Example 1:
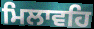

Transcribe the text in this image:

ਮਿਲਾਵਹਿ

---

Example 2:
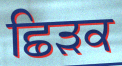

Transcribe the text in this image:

ਛਿੜਕ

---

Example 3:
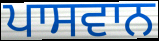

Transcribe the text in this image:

ਪਾਸਵਾਨ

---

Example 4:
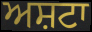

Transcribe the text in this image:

ਅਸ਼ਟਾ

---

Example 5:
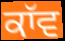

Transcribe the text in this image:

ਕਾੱਵ